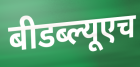
बीडब्ल्यूएच